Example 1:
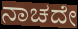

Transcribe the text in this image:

ನಾಚದೇ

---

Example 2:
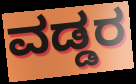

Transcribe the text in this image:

ವಡ್ಡರ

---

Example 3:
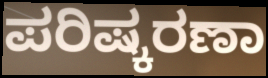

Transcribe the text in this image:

ಪರಿಷ್ಕರಣಾ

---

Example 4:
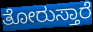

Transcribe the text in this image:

ತೋರುಸ್ತಾರೆ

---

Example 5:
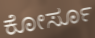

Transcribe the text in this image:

ಕೋರ್ಸೂ